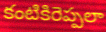
కంటికిరెప్పలా